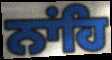
ਨਾਂਹਿ